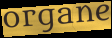
organe